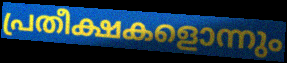
പ്രതീക്ഷകളൊന്നും